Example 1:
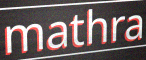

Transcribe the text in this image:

mathra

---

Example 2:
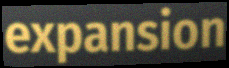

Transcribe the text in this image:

expansion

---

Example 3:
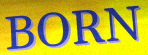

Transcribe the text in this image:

BORN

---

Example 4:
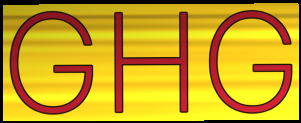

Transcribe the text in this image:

GHG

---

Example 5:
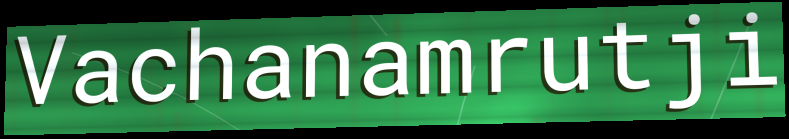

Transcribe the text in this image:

Vachanamrutji